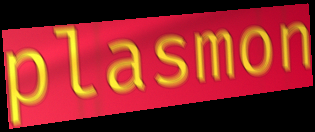
plasmon